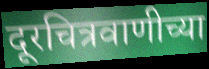
दूरचित्रवाणीच्या